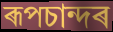
ৰূপচান্দৰ